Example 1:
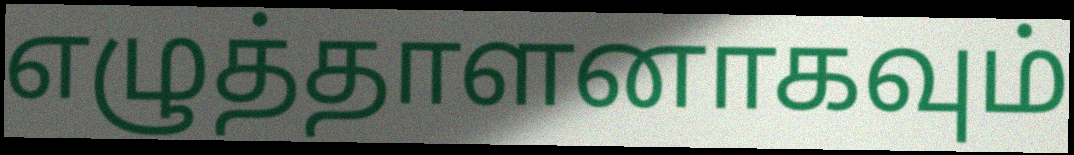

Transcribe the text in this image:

எழுத்தாளனாகவும்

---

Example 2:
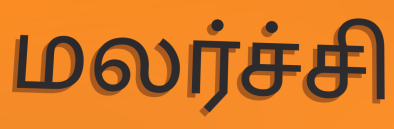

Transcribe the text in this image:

மலர்ச்சி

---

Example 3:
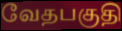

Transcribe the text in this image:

வேதபகுதி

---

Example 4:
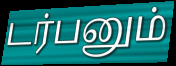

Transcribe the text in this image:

டர்பனும்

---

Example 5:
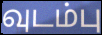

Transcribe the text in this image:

வுடம்பு